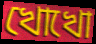
খোখো